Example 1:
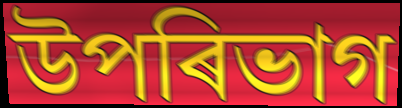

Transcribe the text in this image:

উপৰিভাগ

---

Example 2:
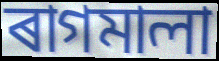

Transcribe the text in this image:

ৰাগমালা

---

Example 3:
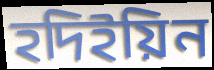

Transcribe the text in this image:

হদিইয়িন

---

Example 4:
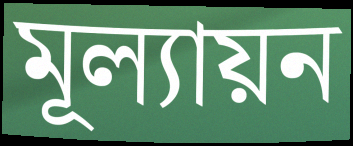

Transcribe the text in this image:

মূল্যায়ন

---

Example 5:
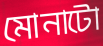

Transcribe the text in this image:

মোনাটো